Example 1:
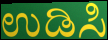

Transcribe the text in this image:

ಉಡಿಸಿ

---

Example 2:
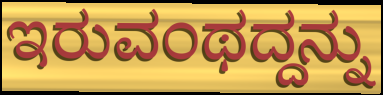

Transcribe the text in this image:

ಇರುವಂಥದ್ದನ್ನು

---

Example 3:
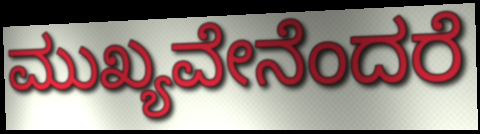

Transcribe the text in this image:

ಮುಖ್ಯವೇನೆಂದರೆ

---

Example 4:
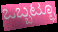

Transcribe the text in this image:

ಒಬ್ಬಟ್ಟೂ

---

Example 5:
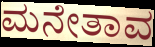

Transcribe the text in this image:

ಮನೇತಾವ